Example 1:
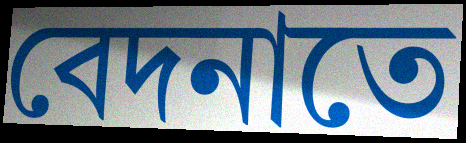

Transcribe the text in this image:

বেদনাতে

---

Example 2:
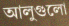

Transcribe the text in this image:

আলুগুলো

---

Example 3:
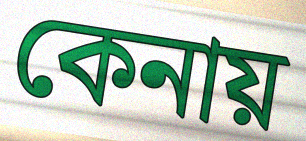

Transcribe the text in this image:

কেনায়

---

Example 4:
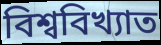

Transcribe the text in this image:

বিশ্ববিখ্যাত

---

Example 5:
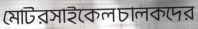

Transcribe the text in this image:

মোটরসাইকেলচালকদের